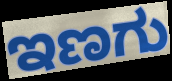
ಇಣಗು